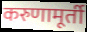
करुणामूर्ती